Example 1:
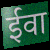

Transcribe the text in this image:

ईवा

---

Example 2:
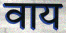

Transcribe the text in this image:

वाय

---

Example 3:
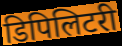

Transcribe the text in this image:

डिपिलिटरी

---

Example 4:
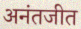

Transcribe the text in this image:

अनंतजीत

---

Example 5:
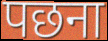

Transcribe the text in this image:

पछना